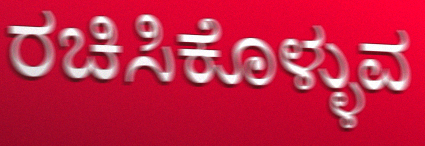
ರಚಿಸಿಕೊಳ್ಳುವ